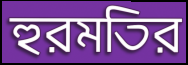
হুরমতির